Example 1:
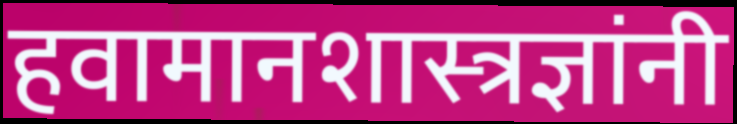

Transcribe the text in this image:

हवामानशास्त्रज्ञांनी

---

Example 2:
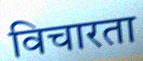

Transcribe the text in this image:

विचारता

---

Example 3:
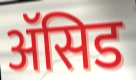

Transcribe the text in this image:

ॲसिड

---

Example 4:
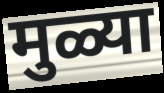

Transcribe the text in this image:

मुळ्या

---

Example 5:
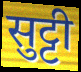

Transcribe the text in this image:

सुट्टी